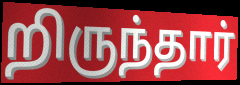
றிருந்தார்